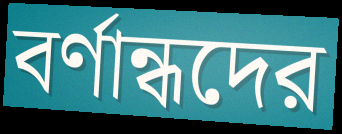
বর্ণান্ধদের